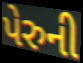
પેરુની